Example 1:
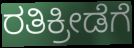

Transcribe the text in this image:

ರತಿಕ್ರೀಡೆಗೆ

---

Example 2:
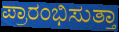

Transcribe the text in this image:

ಪ್ರಾರಂಭಿಸುತ್ತಾ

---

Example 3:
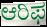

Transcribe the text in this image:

ಆರಿಫ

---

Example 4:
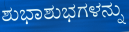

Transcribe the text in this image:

ಶುಭಾಶುಭಗಳನ್ನು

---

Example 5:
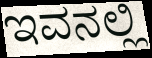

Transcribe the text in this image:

ಇವನಲ್ಲಿ